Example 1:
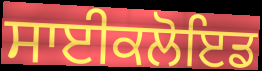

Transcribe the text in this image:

ਸਾਈਕਲੋਇਡ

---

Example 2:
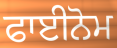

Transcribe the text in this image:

ਫਾਈਨੋਮ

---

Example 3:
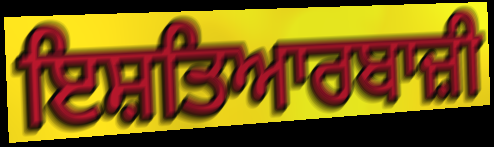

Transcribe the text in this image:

ਇਸ਼ਤਿਆਰਬਾਜ਼ੀ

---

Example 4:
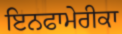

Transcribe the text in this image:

ਇਨਫਾਮੇਰੀਕਾ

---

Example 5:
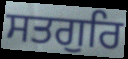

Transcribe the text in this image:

ਸਤਗੁਰਿ